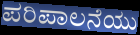
ಪರಿಪಾಲನೆಯು